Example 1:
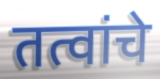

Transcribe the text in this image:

तत्वांचे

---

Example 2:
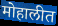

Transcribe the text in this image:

मोहालीत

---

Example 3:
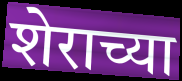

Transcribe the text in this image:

शेराच्या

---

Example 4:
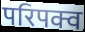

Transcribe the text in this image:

परिपक्व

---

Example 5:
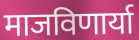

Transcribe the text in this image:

माजविणार्या